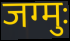
जग्मुः